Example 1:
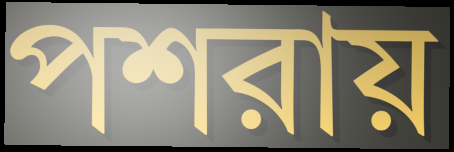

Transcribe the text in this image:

পশরায়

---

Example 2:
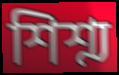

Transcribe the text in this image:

শিশ্ম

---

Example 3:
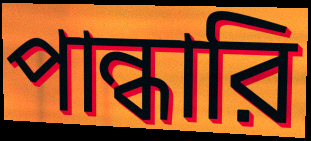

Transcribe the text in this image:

পান্ধারি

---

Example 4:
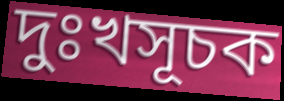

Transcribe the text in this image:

দুঃখসূচক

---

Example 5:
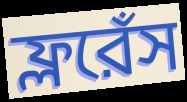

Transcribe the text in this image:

ফ্লরেঁস